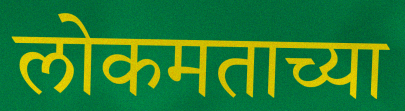
लोकमताच्या